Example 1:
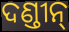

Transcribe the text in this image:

ଦଣ୍ଡୀନ୍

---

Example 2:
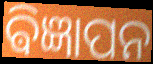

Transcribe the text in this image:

ଵିଜ୍ଞାପନ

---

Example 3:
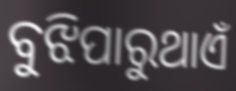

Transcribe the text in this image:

ବୁଝିପାରୁଥାଏଁ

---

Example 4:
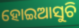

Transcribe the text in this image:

ହୋଇଆସୁଚି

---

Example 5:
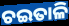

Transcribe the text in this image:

ଚଇତାଳି